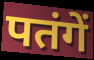
पतंगें